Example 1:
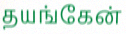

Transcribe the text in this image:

தயங்கேன்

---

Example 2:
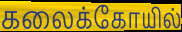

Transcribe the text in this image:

கலைக்கோயில்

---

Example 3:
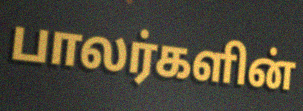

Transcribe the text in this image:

பாலர்களின்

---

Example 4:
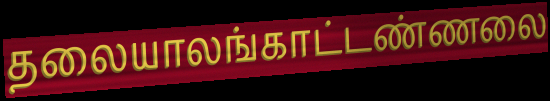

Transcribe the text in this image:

தலையாலங்காட்டண்ணலை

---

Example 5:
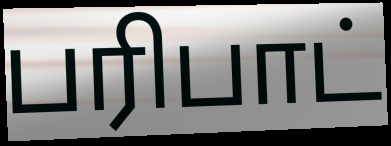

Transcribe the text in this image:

பரிபாட்